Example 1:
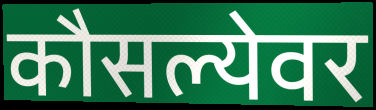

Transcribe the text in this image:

कौसल्येवर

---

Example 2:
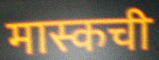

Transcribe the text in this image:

मास्कची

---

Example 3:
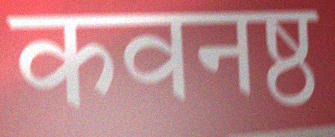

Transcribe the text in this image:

कवनष्ठ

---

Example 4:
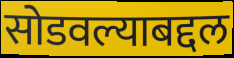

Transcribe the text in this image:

सोडवल्याबद्दल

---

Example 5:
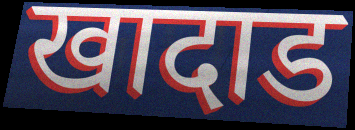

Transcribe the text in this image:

खादाड